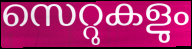
സെറ്റുകളും